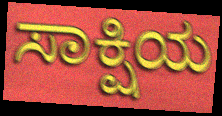
ಸಾಕ್ಷಿಯ